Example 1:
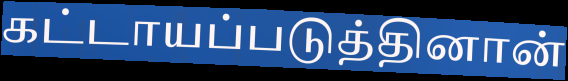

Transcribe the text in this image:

கட்டாயப்படுத்தினான்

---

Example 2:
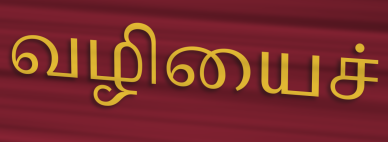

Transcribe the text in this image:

வழியைச்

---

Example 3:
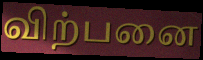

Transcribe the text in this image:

விற்பனை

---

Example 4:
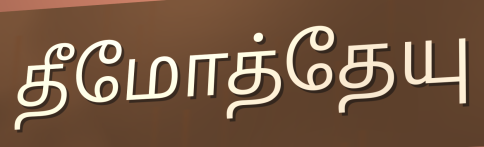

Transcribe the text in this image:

தீமோத்தேயு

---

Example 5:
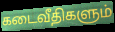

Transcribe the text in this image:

கடைவீதிகளும்